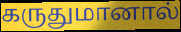
கருதுமானால்